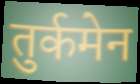
तुर्कमेन